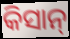
କିସାନ୍